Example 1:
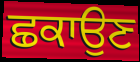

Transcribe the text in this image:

ਛਕਾਉਣ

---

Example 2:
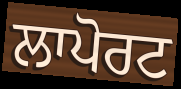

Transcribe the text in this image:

ਲਾਪੋਰਟ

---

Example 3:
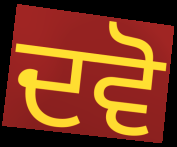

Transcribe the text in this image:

ਦਵੋ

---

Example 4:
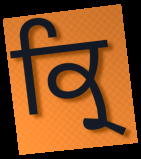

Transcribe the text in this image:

ਕ੍ਰਿ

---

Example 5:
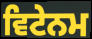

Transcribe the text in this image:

ਵਿਟੇਨਮ